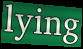
lying